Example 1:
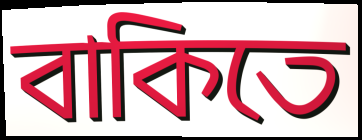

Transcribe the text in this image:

বাকিতে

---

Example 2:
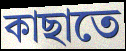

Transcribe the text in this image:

কাছাতে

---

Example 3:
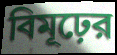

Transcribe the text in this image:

বিমূঢ়ের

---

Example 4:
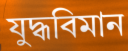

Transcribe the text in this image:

যুদ্ধবিমান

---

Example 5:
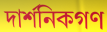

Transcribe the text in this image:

দার্শনিকগণ